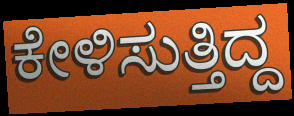
ಕೇಳಿಸುತ್ತಿದ್ದ